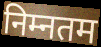
निम्नतम